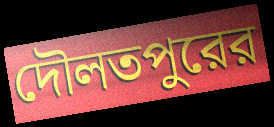
দৌলতপুরের